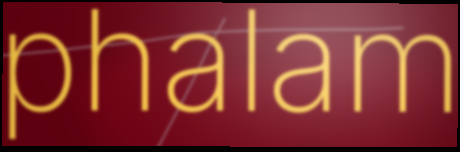
phalam